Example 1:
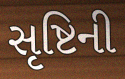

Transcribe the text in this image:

સૃષ્ટિની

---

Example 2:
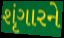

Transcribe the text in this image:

શૃંગારને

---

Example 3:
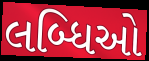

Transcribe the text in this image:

લબ્ધિઓ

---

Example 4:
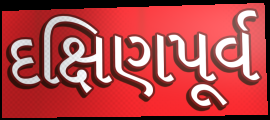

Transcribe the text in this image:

દક્ષિણપૂર્વ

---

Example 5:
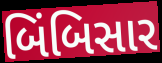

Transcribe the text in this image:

બિંબિસાર